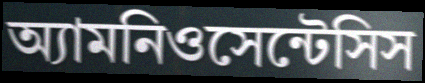
অ্যামনিওসেন্টেসিস